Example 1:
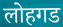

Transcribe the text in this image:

लोहगड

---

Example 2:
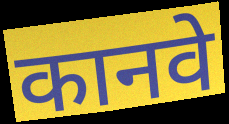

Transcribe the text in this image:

कानवे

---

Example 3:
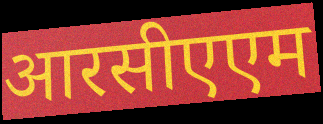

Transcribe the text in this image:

आरसीएएम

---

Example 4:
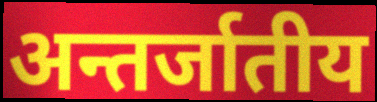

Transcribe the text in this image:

अन्तर्जातीय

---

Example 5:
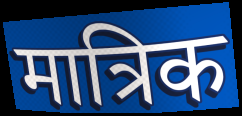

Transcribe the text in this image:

मात्रिक